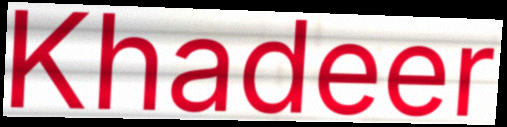
Khadeer